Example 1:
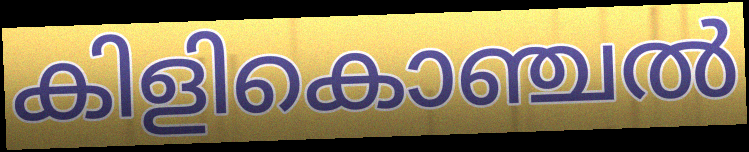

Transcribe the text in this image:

കിളികൊഞ്ചൽ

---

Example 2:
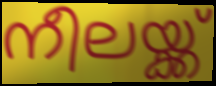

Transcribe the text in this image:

നീലയ്ക്ക്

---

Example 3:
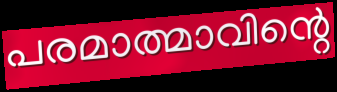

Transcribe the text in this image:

പരമാത്മാവിന്റെ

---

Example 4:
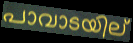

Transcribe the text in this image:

പാവാടയില്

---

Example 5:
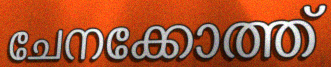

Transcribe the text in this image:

ചേനക്കോത്ത്